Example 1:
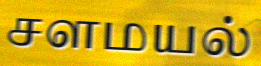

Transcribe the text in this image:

சளமயல்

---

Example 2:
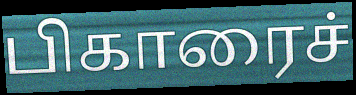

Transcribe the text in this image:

பிகாரைச்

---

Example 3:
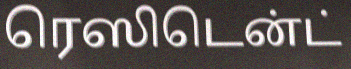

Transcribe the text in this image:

ரெஸிடென்ட்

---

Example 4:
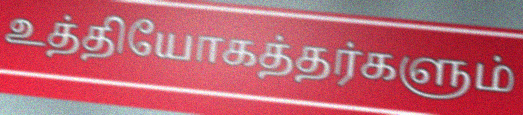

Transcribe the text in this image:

உத்தியோகத்தர்களும்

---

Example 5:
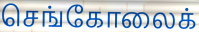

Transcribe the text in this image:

செங்கோலைக்